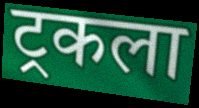
ट्रकला